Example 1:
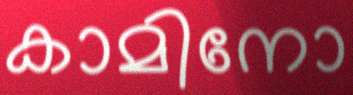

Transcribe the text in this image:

കാമിനോ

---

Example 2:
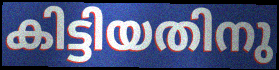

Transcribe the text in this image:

കിട്ടിയതിനു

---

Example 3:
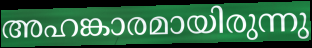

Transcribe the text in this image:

അഹങ്കാരമായിരുന്നു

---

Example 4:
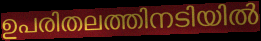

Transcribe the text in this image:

ഉപരിതലത്തിനടിയിൽ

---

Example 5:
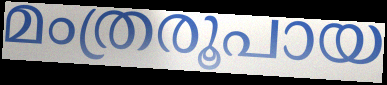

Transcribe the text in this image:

മംത്രരൂപായ